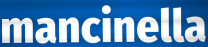
mancinella